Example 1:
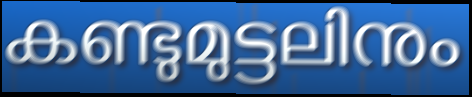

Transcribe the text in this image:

കണ്ടുമുട്ടലിനും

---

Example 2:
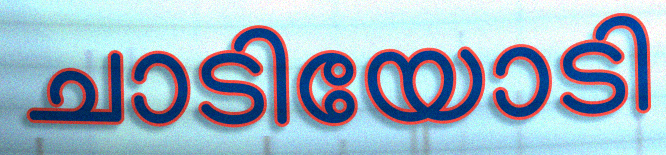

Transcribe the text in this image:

ചാടിയോടി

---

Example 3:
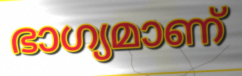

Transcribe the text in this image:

ഭാഗ്യമാണ്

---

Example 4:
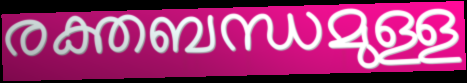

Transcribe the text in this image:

രക്തബന്ധമുള്ള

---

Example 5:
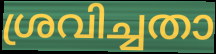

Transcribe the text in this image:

ശ്രവിച്ചതാ